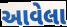
આવેલા